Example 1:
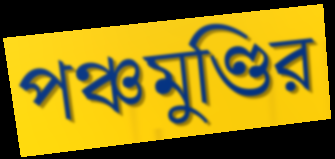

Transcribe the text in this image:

পঞ্চমুণ্ডির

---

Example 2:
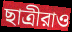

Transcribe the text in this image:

ছাত্রীরাও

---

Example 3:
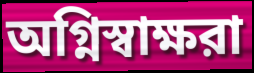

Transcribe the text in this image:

অগ্নিস্বাক্ষরা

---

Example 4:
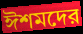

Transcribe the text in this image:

ঈশমদের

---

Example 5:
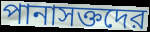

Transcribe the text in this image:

পানাসক্তদের